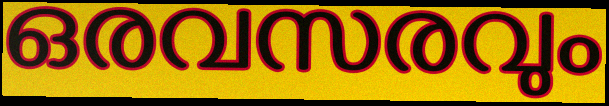
ഒരവസരവും